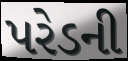
પરેડની